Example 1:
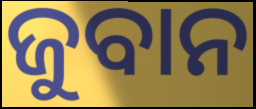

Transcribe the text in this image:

ଜୁବାନ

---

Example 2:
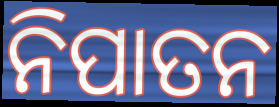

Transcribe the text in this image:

ନିପାତନ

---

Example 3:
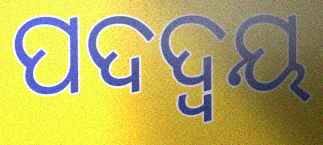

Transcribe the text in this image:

ପଦଦ୍ଵୟ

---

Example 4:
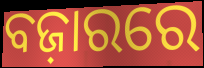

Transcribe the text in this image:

ବଜ଼ାରରେ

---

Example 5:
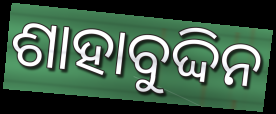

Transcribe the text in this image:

ଶାହାବୁଦ୍ଦିନ